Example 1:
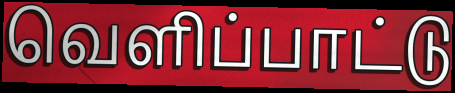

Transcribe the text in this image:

வெளிப்பாட்டு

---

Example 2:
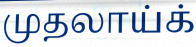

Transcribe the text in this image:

முதலாய்க்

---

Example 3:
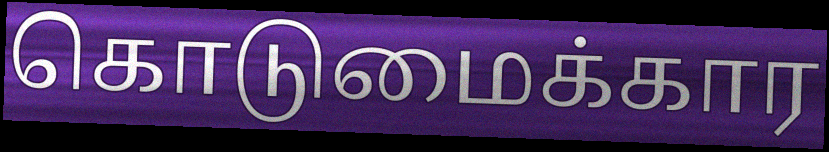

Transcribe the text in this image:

கொடுமைக்கார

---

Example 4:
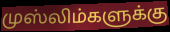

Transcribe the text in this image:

முஸ்லிம்களுக்கு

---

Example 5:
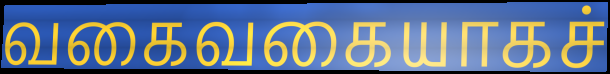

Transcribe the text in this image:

வகைவகையாகச்